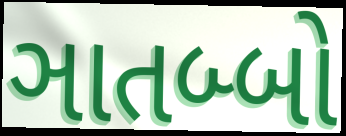
ઞાતબ્બો